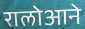
रालोआने